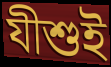
যীশুই